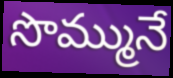
సొమ్మునే